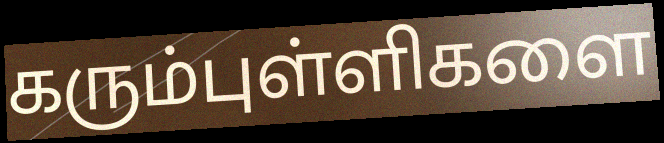
கரும்புள்ளிகளை